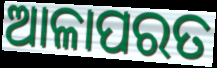
ଆଳାପରତ